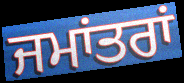
ਜਮਾਂਤਰਾਂ